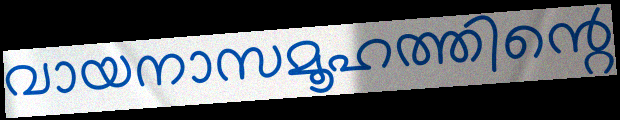
വായനാസമൂഹത്തിന്റെ